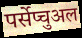
पर्सेप्चुअल